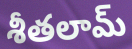
శీతలామ్